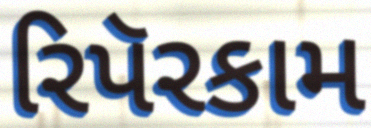
રિપૅરકામ